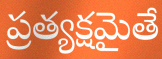
ప్రత్యక్షమైతే